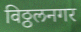
विठ्ठलनगर